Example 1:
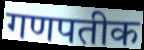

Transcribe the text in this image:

गणपतीक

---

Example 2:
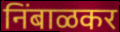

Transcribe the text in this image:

निंबाळकर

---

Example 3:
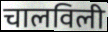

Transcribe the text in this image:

चालविली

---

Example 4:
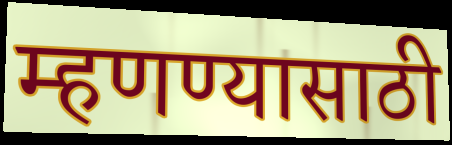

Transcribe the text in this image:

म्हणण्यासाठी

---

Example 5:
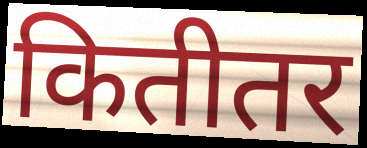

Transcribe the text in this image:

कितीतर